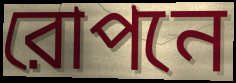
রোপনে